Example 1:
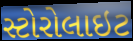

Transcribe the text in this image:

સ્ટોરોલાઇટ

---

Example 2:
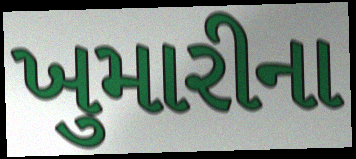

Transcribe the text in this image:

ખુમારીના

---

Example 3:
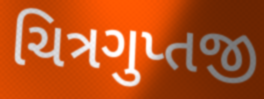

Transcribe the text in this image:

ચિત્રગુપ્તજી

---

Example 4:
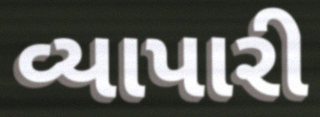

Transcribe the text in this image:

વ્યાપારી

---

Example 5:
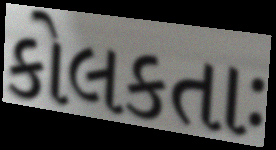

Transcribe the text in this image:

કોલકતાઃ